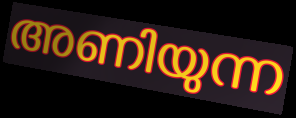
അണിയുന്ന